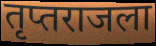
तृप्तराजला